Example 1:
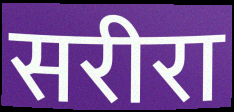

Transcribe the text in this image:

सरीरा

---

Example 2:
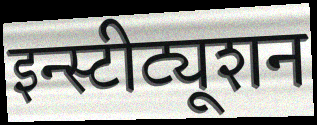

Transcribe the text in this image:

इन्स्टीट्यूशन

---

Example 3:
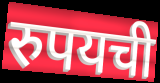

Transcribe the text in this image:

रुपयची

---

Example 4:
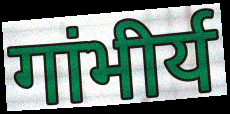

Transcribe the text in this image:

गांभीर्य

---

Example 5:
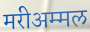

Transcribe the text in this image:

मरीअम्मल